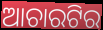
ଆଚାରଟିର